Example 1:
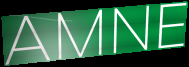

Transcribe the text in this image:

AMNE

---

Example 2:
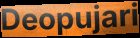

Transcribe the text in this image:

Deopujari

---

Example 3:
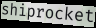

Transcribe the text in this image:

shiprocket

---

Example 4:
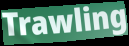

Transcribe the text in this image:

Trawling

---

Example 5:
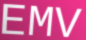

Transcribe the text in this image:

EMV